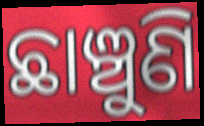
ଛାଞ୍ଚୁଣି